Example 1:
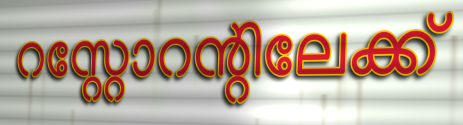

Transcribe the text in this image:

റസ്റ്റോറന്റിലേക്ക്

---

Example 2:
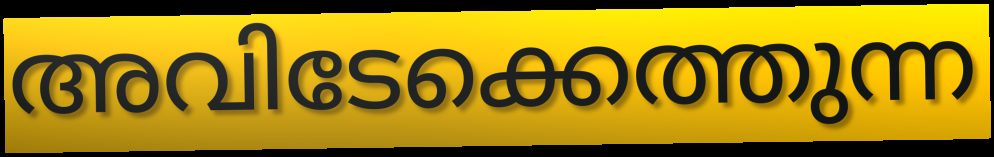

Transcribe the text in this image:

അവിടേക്കെത്തുന്ന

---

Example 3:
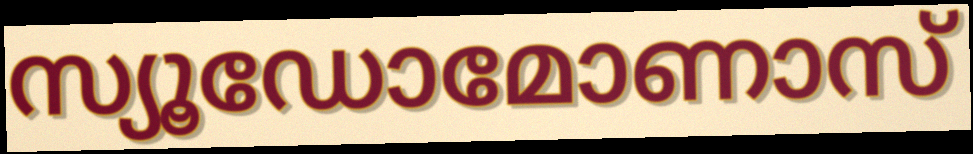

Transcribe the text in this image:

സ്യൂഡോമോണാസ്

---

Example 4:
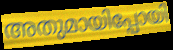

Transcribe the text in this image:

അതുമായിപ്പോയി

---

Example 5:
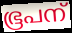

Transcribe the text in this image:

ഭൂപന്